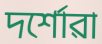
দৰ্শোৱা